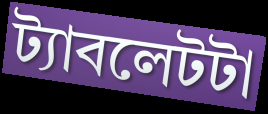
ট্যাবলেটটা